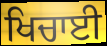
ਖਿਚਾਈ